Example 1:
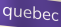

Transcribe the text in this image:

quebec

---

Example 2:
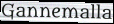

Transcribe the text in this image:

Gannemalla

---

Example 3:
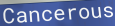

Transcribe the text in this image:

Cancerous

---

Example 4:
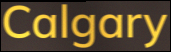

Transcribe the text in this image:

Calgary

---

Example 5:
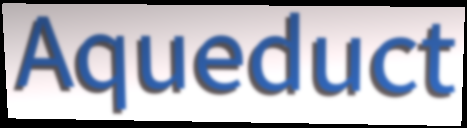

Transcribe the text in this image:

Aqueduct